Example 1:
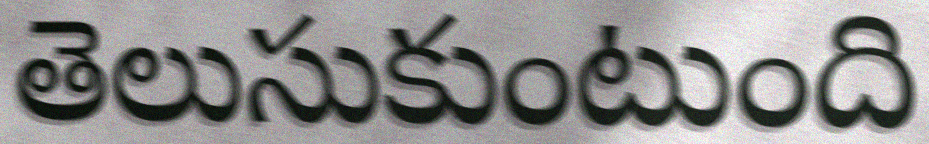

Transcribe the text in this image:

తెలుసుకుంటుంది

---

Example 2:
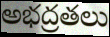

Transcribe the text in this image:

అభద్రతలు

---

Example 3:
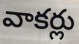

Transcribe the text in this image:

వాకర్లు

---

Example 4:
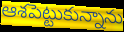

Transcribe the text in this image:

ఆశపెట్టుకున్నాను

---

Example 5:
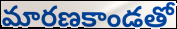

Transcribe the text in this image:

మారణకాండతో